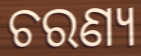
ଚରଣ୍ୟ